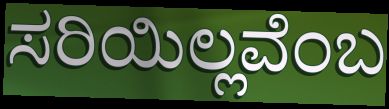
ಸರಿಯಿಲ್ಲವೆಂಬ